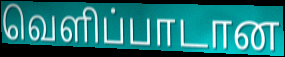
வெளிப்பாடான